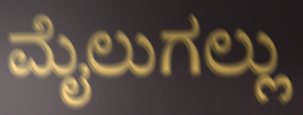
ಮೈಲುಗಲ್ಲು